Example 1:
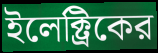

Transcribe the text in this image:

ইলেক্ট্রিকের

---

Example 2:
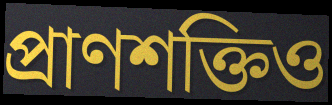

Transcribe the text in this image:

প্রাণশক্তিও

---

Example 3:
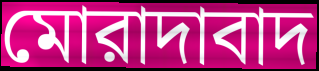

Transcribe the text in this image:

মোরাদাবাদ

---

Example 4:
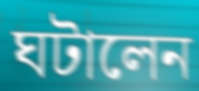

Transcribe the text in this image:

ঘটালেন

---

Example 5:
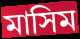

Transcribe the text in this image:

মাসিম